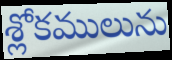
శ్లోకములును